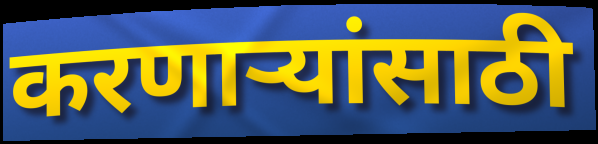
करणाऱ्यांसाठी